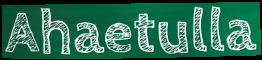
Ahaetulla